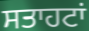
ਸਤਾਹਟਾਂ